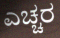
ಎಚ್ಚರ